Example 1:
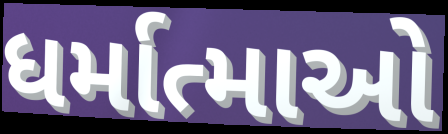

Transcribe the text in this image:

ધર્માત્માઓ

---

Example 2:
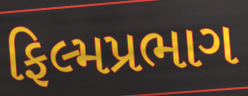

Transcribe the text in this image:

ફિલ્મપ્રભાગ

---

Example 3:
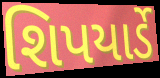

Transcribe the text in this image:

શિપયાર્ડે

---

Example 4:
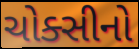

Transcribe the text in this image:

ચોક્સીનો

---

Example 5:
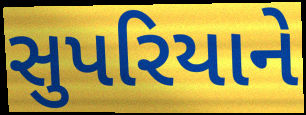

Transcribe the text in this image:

સુપરિયાને